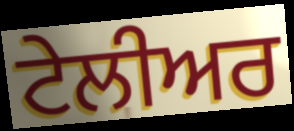
ਟੇਲੀਅਰ